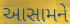
આસામને